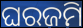
ଘରଜମି